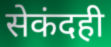
सेकंदही